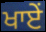
ਖਾਏਂ